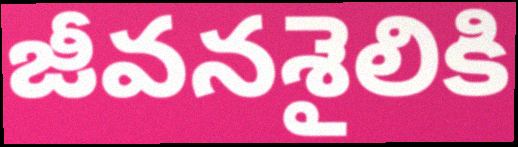
జీవనశైలికి